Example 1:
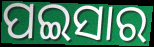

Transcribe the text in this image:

ପଇସାର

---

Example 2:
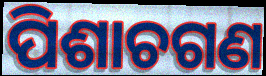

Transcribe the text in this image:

ପିଶାଚଗଣ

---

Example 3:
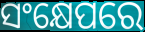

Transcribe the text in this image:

ସଂକ୍ଷେପରେ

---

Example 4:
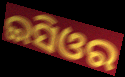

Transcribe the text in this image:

ଇସିଓର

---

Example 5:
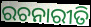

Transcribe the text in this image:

ରଚନାରୀତି